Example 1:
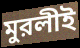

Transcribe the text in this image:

মুরলীই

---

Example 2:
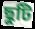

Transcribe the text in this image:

ছুটি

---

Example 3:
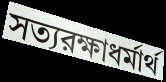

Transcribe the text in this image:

সত্যরক্ষাধর্মার্থ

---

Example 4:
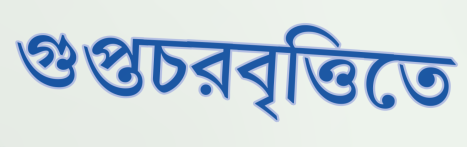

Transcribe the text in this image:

গুপ্তচরবৃত্তিতে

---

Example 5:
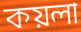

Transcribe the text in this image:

কয়লা